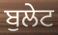
ਬੁਲੇਟ